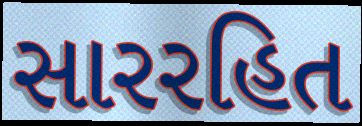
સારરહિત